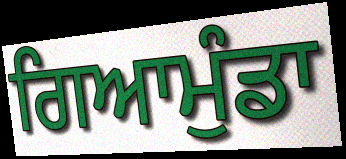
ਗਿਆਮੁੰਡਾ